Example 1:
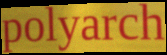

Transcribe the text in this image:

polyarch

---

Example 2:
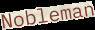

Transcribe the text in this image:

Nobleman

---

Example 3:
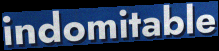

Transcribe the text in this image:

indomitable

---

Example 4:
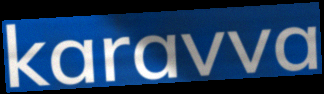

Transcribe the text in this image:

karavva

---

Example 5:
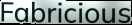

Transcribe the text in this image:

Fabricious